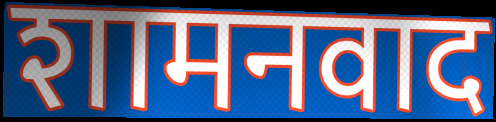
शामनवाद